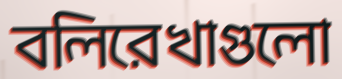
বলিরেখাগুলো